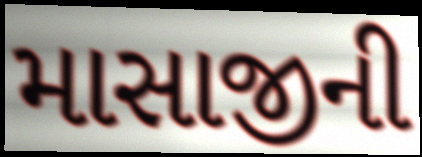
માસાજીની